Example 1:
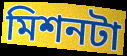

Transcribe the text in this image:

মিশনটা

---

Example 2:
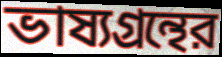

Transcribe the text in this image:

ভাষ্যগ্রন্থের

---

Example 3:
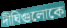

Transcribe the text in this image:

দীঘিগুলোকে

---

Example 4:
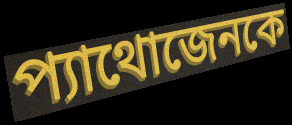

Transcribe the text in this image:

প্যাথোজেনকে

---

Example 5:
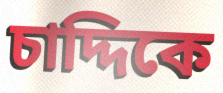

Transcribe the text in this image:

চাদ্দিকে